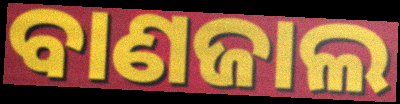
ବାଣଜାଲ